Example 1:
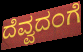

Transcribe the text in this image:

ದೆವ್ವದಂಗೆ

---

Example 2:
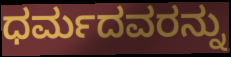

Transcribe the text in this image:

ಧರ್ಮದವರನ್ನು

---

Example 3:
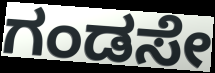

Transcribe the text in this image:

ಗಂಡಸೇ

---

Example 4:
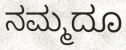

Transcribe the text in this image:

ನಮ್ಮದೂ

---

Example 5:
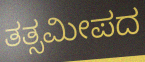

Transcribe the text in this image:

ತತ್ಸಮೀಪದ